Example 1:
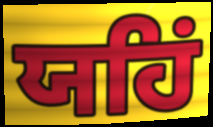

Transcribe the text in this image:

ਯਹਿਂ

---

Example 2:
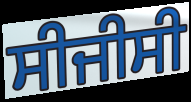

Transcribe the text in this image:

ਸੀਜੀਸੀ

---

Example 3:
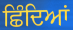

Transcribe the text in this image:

ਛਿੰਦਿਆਂ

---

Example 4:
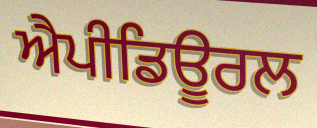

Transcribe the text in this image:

ਐਪੀਡਿਊਰਲ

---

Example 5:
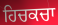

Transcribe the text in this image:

ਹਿਚਕਚਾ